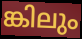
ങ്കിലും